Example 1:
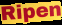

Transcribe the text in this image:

Ripen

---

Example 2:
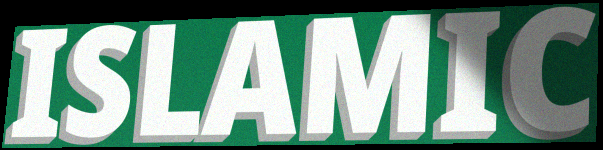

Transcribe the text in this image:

ISLAMIC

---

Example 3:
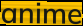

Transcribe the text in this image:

anime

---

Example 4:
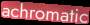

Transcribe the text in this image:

achromatic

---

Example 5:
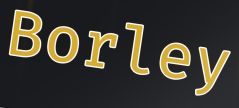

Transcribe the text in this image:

Borley